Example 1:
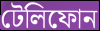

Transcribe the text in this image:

টেলিফোন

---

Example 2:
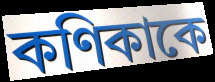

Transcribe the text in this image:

কণিকাকে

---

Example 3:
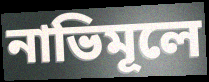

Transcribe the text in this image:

নাভিমূলে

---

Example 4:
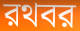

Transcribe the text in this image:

রথবর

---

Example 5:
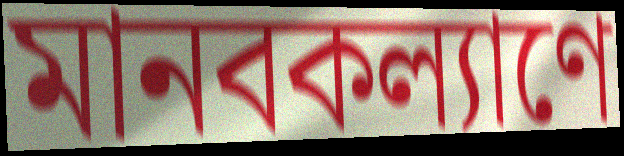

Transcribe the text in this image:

মানবকল্যাণে